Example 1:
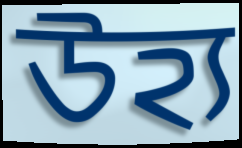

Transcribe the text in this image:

উহ্য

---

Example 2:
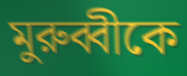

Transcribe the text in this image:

মুরুব্বীকে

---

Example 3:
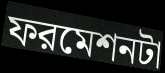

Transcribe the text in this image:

ফরমেশনটা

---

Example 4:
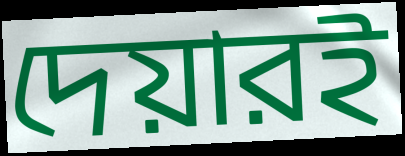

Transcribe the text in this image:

দেয়ারই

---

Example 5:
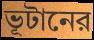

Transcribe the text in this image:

ভূটানের